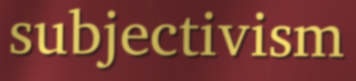
subjectivism